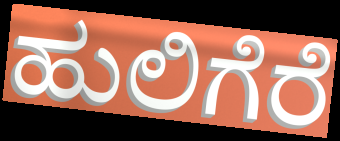
ಹುಲಿಗೆರೆ